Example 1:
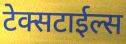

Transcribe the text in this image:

टेक्सटाईल्स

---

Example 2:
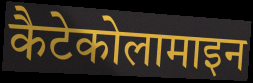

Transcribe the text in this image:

कैटेकोलामाइन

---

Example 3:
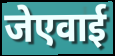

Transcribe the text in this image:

जेएवाई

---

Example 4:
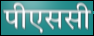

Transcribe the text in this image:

पीएससी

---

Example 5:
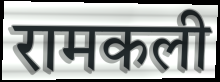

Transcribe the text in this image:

रामकली